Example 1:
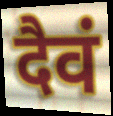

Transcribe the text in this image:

दैवं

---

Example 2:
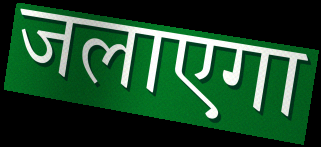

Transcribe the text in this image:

जलाएगा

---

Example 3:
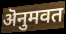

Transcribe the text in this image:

ऄनुमवत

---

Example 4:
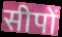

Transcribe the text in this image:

सीपों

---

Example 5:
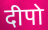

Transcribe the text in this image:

दीपो